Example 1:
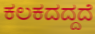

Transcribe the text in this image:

ಕಲಕದದ್ದದೆ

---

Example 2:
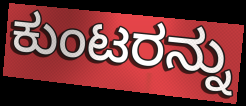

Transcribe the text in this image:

ಕುಂಟರನ್ನು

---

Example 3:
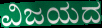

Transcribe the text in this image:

ವಿಜಯದ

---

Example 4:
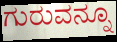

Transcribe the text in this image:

ಗುರುವನ್ನೂ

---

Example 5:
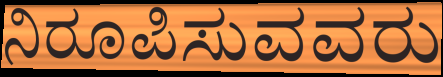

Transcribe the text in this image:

ನಿರೂಪಿಸುವವರು